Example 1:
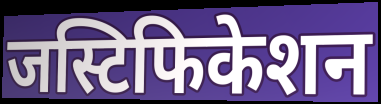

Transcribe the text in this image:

जस्टिफिकेशन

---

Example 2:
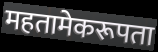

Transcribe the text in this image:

महतामेकरूपता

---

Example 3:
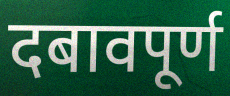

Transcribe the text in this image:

दबावपूर्ण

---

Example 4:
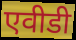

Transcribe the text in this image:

एवीडी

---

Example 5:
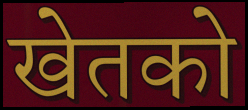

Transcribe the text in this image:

खेतको